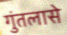
गुंतलासे